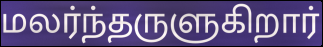
மலர்ந்தருளுகிறார்